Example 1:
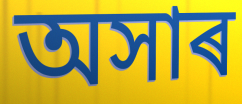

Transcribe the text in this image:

অসাৰ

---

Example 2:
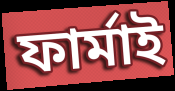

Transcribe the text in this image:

ফাৰ্মাই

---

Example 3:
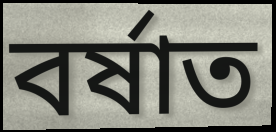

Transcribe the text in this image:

বৰ্ষাত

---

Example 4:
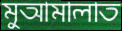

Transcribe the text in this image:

মুআমালাত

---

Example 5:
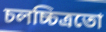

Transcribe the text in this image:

চলচ্চিত্ৰতো